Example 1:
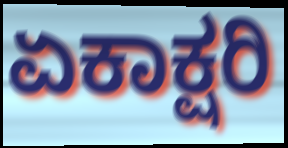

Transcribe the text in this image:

ಏಕಾಕ್ಷರಿ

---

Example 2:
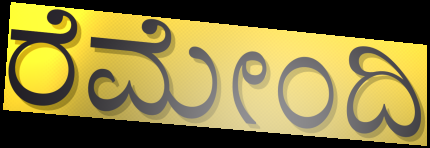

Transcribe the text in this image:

ರೆಮೇಂದಿ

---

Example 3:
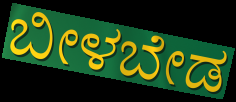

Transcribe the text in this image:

ಬೀಳಬೇಡ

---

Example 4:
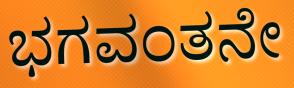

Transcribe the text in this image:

ಭಗವಂತನೇ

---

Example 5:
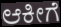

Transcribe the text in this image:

ಆಕೀಗೆ